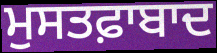
ਮੁਸਤਫ਼ਾਬਾਦ